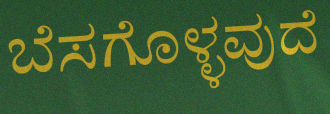
ಬೆಸಗೊಳ್ಳವುದೆ